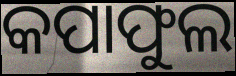
କପାଫୁଲ